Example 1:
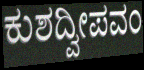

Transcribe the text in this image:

ಕುಶದ್ವೀಪವಂ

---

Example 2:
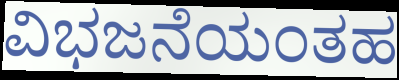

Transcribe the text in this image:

ವಿಭಜನೆಯಂತಹ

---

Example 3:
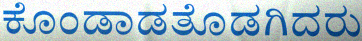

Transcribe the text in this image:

ಕೊಂಡಾಡತೊಡಗಿದರು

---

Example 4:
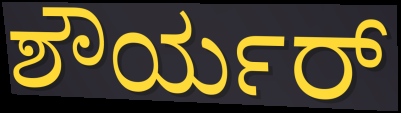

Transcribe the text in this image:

ಶೌರ್ಯರ್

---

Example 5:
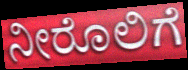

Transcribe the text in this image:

ನೀರೊಲಿಗೆ